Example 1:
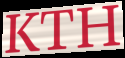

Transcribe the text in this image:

KTH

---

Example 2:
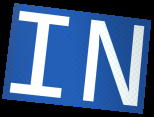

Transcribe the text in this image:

IN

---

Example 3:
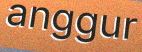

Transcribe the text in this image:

anggur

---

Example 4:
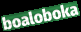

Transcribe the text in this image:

boaloboka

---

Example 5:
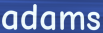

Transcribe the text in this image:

adams